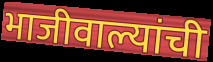
भाजीवाल्यांची